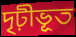
দৃঢ়ীভূত